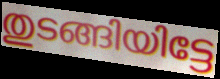
തുടങ്ങിയിട്ടേ